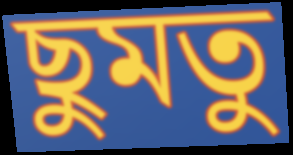
ছুমতু